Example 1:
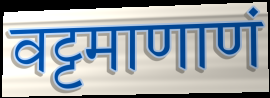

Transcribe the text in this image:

वट्टमाणाणं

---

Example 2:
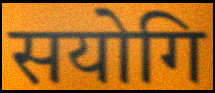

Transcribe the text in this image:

सयोगि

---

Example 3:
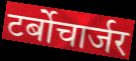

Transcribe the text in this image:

टर्बोचार्जर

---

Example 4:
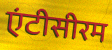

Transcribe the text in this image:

एंटीसीरम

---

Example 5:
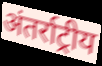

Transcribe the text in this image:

अंतर्राट्रीय